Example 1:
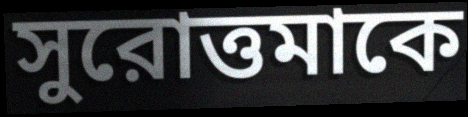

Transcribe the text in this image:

সুরোত্তমাকে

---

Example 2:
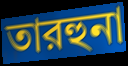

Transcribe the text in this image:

তারহুনা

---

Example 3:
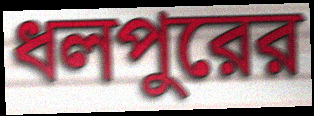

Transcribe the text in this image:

ধলপুরের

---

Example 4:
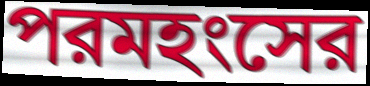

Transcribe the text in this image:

পরমহংসের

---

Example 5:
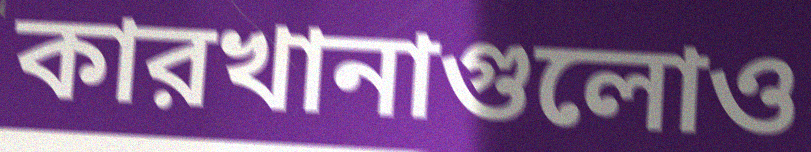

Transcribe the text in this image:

কারখানাগুলোও